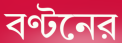
বণ্টনের